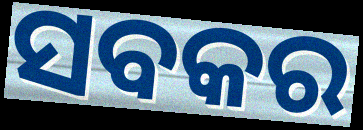
ସବକର